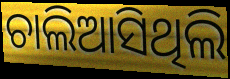
ଚାଲିଆସିଥିଲି